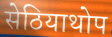
सेठियाथोप